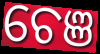
ଚେଞ